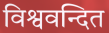
विश्ववन्दित